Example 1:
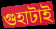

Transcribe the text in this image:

গুহাটাই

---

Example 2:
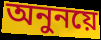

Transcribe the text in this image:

অনুনয়ে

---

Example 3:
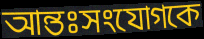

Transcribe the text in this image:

আন্তঃসংযোগকে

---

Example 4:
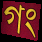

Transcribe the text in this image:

গং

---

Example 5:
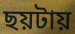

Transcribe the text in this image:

ছয়টায়